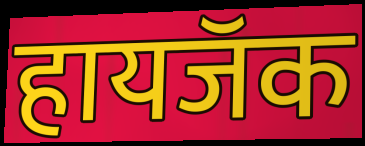
हायजॅक